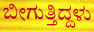
ಬೀಗುತ್ತಿದ್ದಳು